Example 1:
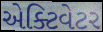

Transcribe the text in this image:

એક્ટિવેટર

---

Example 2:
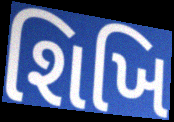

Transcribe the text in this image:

શિખિ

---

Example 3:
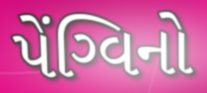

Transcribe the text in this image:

પેંગ્વિનો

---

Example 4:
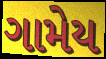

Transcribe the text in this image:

ગામેય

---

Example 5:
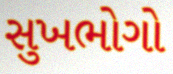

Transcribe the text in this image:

સુખભોગો